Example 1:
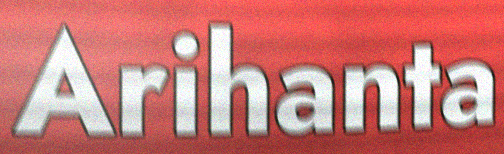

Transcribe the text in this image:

Arihanta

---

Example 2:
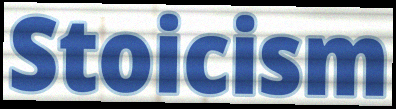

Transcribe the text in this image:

Stoicism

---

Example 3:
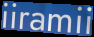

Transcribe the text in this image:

iiramii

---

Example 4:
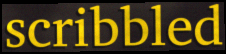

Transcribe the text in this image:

scribbled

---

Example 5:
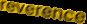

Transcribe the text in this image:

reverence